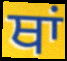
ਥਾਂ